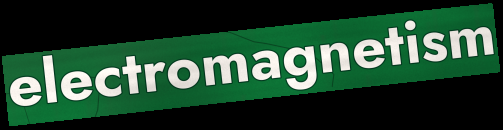
electromagnetism